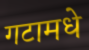
गटामधे